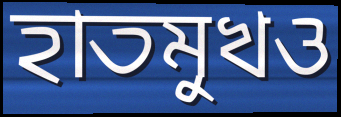
হাতমুখও